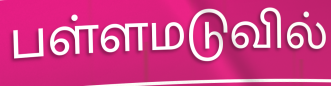
பள்ளமடுவில்